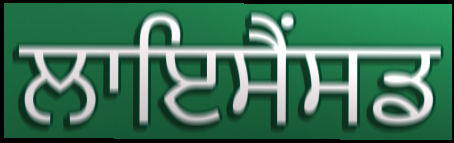
ਲਾਇਸੈਂਸਡ